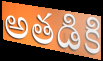
అతడికి